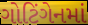
ગોટિંગેનમાં